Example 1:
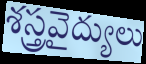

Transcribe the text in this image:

శస్త్రవైద్యులు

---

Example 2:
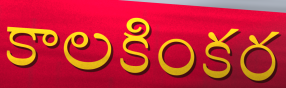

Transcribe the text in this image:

కాలకింకర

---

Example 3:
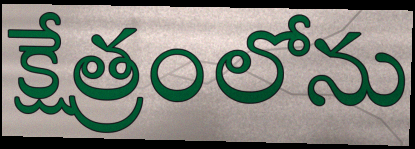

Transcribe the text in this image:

క్షేత్రంలోను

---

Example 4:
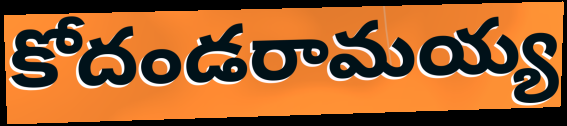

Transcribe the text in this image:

కోదండరామయ్య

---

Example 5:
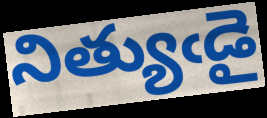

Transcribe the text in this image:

నిత్యుఁడై